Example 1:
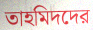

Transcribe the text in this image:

তাহমিদদের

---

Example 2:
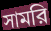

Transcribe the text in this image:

সামরি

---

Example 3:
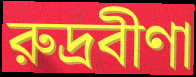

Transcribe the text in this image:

রুদ্রবীণা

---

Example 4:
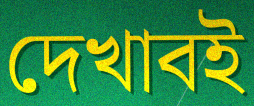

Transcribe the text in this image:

দেখাবই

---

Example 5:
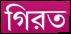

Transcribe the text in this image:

গিরত